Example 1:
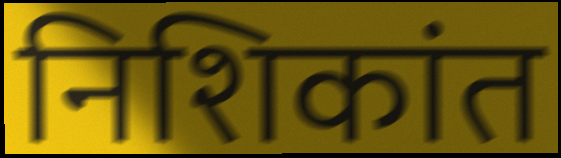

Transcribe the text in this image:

निशिकांत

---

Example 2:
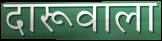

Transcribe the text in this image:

दारूवाला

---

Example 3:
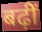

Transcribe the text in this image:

बढ़ीं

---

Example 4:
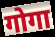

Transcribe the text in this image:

गोगा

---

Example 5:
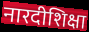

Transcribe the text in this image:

नारदीशिक्षा